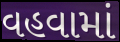
વહવામાં